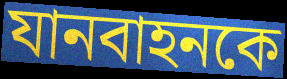
যানবাহনকে